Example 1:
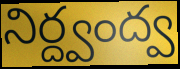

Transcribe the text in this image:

నిర్ద్వంద్వ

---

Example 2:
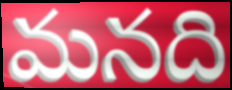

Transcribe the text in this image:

మనది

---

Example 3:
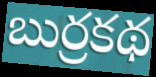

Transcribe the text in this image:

బుర్రకథ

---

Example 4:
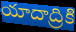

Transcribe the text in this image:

యాదాద్రికి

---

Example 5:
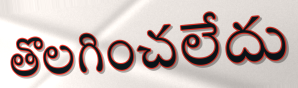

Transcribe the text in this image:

తొలగించలేదు